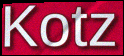
Kotz